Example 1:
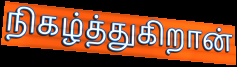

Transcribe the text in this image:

நிகழ்த்துகிறான்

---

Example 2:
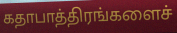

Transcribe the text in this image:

கதாபாத்திரங்களைச்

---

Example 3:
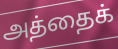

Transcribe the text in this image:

அத்தைக்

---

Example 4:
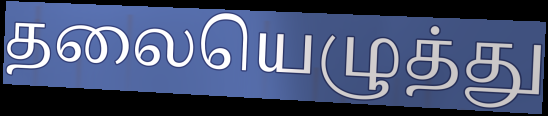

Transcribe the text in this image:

தலையெழுத்து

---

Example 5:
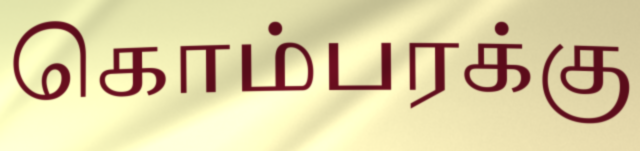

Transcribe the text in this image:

கொம்பரக்கு